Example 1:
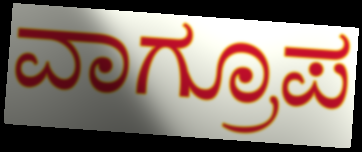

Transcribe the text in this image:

ವಾಗ್ರೂಪ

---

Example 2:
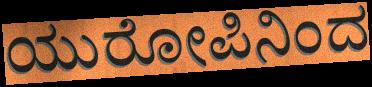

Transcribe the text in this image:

ಯುರೋಪಿನಿಂದ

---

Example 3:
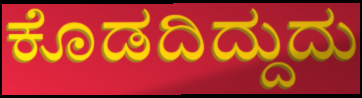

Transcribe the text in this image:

ಕೊಡದಿದ್ದುದು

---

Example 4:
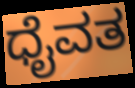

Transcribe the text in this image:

ಧೈವತ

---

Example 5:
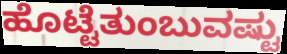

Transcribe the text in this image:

ಹೊಟ್ಟೆತುಂಬುವಷ್ಟು